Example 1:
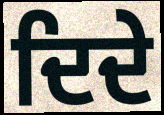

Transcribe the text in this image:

ਦਿਦੇ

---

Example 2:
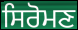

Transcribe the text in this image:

ਸਿਰੋਮਣ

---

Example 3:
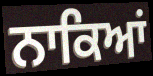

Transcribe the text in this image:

ਨਾਕਿਆਂ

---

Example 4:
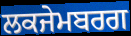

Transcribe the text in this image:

ਲਕਜੇਮਬਰਗ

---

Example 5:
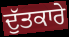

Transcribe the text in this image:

ਦੁੱਤਕਾਰੇ